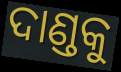
ଦାଣ୍ଡକୁ